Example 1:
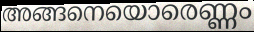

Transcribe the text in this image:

അങ്ങനെയൊരെണ്ണം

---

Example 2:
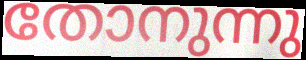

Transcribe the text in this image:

തോനുന്നു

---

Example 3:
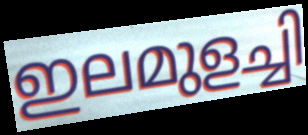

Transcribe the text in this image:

ഇലമുളച്ചി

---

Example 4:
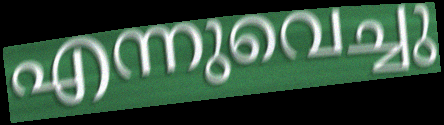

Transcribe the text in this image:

എന്നുവെച്ചു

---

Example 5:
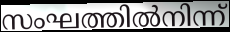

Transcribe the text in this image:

സംഘത്തിൽനിന്ന്